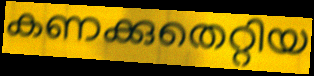
കണക്കുതെറ്റിയ